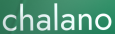
chalano